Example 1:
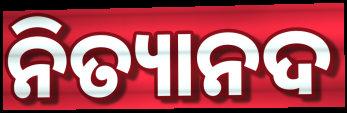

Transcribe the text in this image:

ନିତ୍ୟାନଦ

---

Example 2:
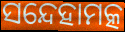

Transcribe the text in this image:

ସନ୍ଦେହାମତ୍କ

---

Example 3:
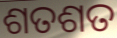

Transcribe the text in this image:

ଶତଶତ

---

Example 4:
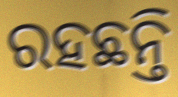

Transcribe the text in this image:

ରହଛନ୍ତି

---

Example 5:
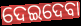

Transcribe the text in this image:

ଦେଇଦେବା